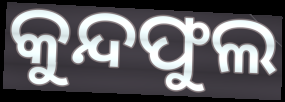
କୁନ୍ଦଫୁଲ